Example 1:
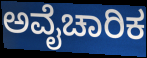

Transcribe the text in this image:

ಅವೈಚಾರಿಕ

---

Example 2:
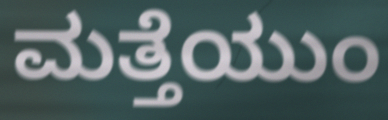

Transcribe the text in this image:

ಮತ್ತೆಯುಂ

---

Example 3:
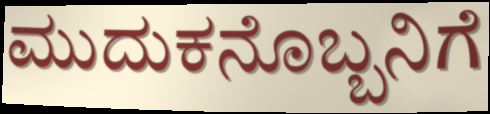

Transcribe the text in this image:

ಮುದುಕನೊಬ್ಬನಿಗೆ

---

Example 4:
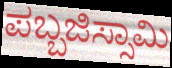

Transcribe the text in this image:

ಪಬ್ಬಜಿಸ್ಸಾಮಿ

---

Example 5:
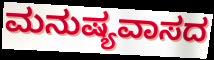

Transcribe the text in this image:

ಮನುಷ್ಯವಾಸದ